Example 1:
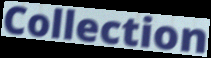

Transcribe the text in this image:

Collection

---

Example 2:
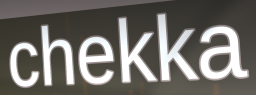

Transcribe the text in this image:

chekka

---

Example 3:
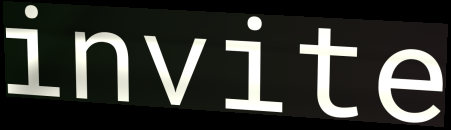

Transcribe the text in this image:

invite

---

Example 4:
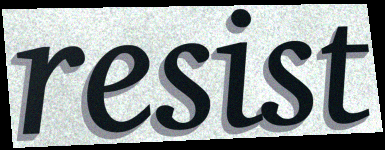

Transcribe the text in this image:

resist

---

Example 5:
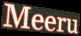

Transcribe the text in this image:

Meeru